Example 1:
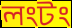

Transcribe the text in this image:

লংটং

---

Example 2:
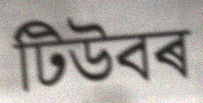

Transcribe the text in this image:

টিউবৰ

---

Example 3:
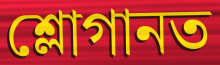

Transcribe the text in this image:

শ্লোগানত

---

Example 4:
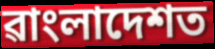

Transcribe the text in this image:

ৱাংলাদেশত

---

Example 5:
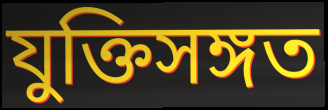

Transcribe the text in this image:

যুক্তিসঙ্গত